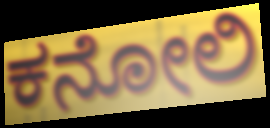
ಕನೋಲಿ